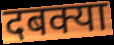
दबक्या